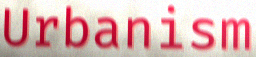
Urbanism